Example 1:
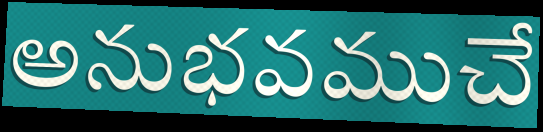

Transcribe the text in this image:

అనుభవముచే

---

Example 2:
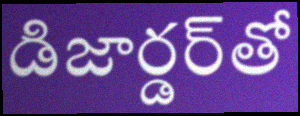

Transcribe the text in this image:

డిజార్డర్‌తో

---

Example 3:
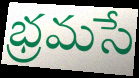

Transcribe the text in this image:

భ్రమసే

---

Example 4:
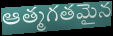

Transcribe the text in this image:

ఆత్మగతమైన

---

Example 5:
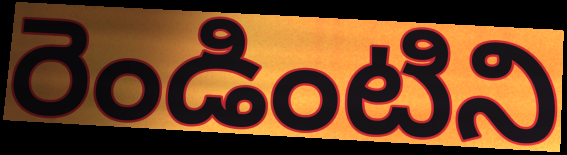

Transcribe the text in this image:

రెండింటిని